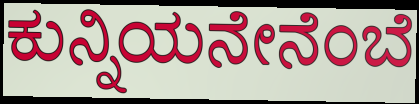
ಕುನ್ನಿಯನೇನೆಂಬೆ